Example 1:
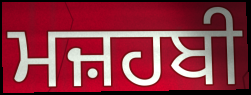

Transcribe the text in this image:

ਮਜ਼ਹਬੀ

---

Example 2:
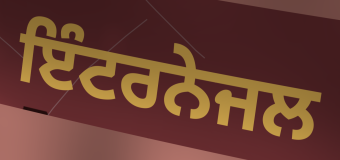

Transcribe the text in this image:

ਇੰਟਰਨੇਜਲ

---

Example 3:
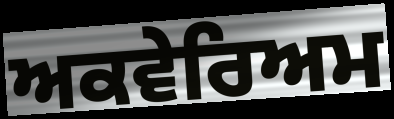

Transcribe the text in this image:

ਅਕਵੇਰਿਅਮ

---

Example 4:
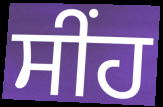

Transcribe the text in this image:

ਸੀਂਹ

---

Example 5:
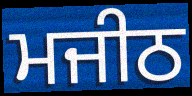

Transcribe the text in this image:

ਮਜੀਠ